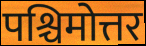
पश्चिमोत्तर